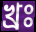
খ্রঃ